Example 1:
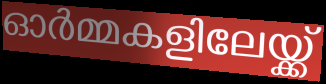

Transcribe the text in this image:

ഓർമ്മകളിലേയ്ക്ക്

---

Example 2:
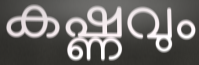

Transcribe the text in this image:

കഷ്ണവും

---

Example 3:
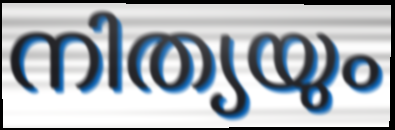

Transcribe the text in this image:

നിത്യയും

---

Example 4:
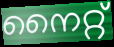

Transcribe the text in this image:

നൈറ്റ്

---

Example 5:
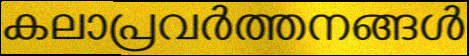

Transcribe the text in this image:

കലാപ്രവർത്തനങ്ങൾ